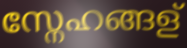
സ്നേഹങ്ങള്